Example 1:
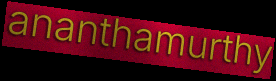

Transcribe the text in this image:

ananthamurthy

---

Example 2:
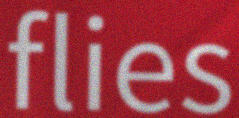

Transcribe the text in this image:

flies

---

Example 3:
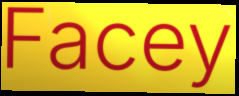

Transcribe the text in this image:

Facey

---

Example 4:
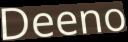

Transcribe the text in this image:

Deeno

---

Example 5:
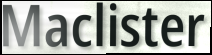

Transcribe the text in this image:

Maclister